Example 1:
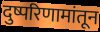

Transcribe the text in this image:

दुष्परिणामांतून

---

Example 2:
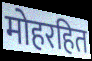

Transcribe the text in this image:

मोहरहित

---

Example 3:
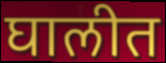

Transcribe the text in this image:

घालीत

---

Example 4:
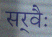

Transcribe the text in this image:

सर्वैः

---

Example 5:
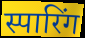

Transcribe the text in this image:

स्पारिंग